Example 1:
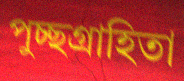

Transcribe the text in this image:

পুচ্ছগ্রাহিতা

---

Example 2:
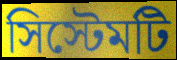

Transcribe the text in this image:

সিস্টেমটি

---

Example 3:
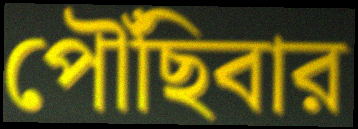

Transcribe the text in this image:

পৌঁছিবার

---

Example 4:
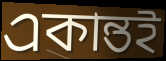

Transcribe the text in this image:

একান্তই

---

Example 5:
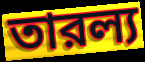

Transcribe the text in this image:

তারল্য